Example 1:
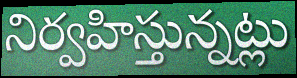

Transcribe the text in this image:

నిర్వహిస్తున్నట్లు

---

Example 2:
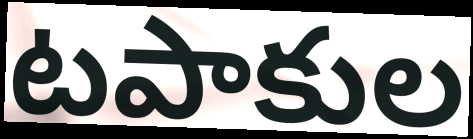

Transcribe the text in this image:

టపాకుల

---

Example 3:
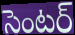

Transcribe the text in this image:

సెంటర్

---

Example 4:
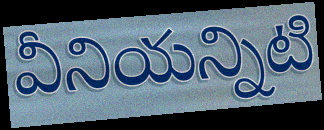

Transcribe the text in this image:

వీనియన్నిటి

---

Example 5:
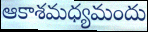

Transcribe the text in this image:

ఆకాశమధ్యమందు